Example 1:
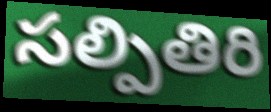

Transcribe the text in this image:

సల్పితిరి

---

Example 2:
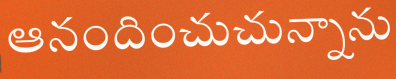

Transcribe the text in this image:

ఆనందించుచున్నాను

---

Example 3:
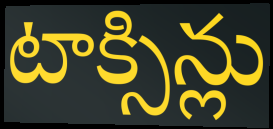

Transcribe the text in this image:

టాక్సిన్లు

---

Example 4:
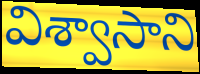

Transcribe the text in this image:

విశ్వాసాని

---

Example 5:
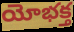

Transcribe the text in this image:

యోభక్త